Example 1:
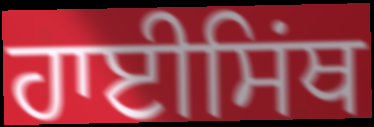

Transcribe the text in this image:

ਹਾਈਸਿਂਥ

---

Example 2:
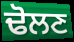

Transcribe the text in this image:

ਢੋਲਣ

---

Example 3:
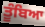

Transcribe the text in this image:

ਤੂੰਬਿਆ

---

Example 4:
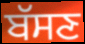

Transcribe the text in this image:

ਬੱਸਣ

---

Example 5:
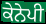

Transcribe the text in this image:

ਕੇਨੇਪੀ